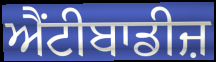
ਐਂਟੀਬਾਡੀਜ਼